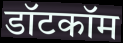
डॉटकॉम